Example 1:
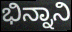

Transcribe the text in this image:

ಭಿನ್ನಾನಿ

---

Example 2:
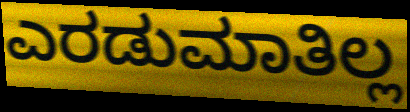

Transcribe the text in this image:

ಎರಡುಮಾತಿಲ್ಲ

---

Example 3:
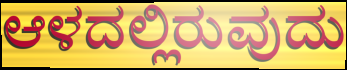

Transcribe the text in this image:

ಆಳದಲ್ಲಿರುವುದು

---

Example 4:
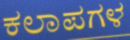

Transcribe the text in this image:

ಕಲಾಪಗಳ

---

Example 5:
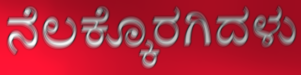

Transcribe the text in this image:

ನೆಲಕ್ಕೊರಗಿದಳು